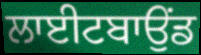
ਲਾਈਟਬਾਉਂਡ